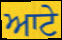
ਆਟੇ